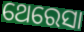
ଥେରେସା